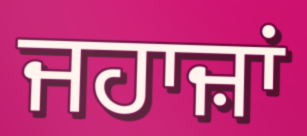
ਜਹਾਜ਼ਾਂ